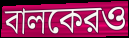
বালকেরও